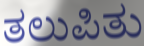
ತಲುಪಿತು